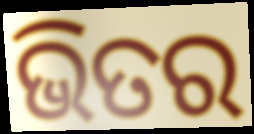
ଭିତର